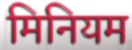
मिनियम